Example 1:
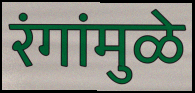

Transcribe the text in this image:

रंगांमुळे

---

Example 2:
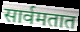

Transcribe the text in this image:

सार्वमतात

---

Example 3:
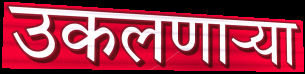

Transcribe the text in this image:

उकलणाऱ्या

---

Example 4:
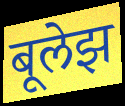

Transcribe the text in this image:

बूलेझ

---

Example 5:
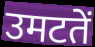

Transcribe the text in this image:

उमटतें